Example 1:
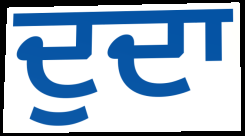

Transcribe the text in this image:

ਦੁਦਾ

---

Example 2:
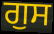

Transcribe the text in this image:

ਗੁਸ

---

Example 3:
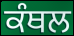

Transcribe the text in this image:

ਕੰਥਲ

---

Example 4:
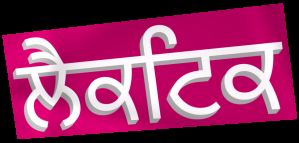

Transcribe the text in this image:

ਲੈਕਟਿਕ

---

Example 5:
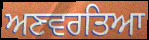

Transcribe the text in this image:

ਅਣਵਰਤਿਆ